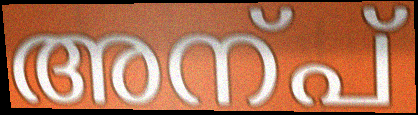
അന്പ്